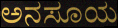
ಅನಸೂಯ